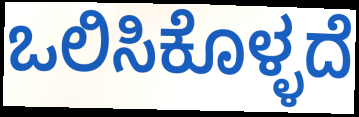
ಒಲಿಸಿಕೊಳ್ಳದೆ